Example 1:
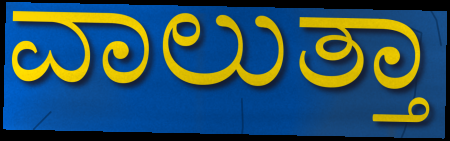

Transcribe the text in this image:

ವಾಲುತ್ತಾ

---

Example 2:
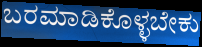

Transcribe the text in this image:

ಬರಮಾಡಿಕೊಳ್ಳಬೇಕು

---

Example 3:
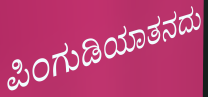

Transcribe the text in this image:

ಪಿಂಗುಡಿಯಾತನದು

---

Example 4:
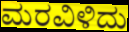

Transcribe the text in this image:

ಮರವಿಳಿದು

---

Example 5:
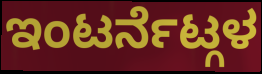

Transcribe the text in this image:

ಇಂಟರ್ನೆಟ್ಗಳ